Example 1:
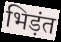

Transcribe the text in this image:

भिड़ंत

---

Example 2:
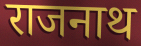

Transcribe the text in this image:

राजनाथ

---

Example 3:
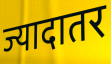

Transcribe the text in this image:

ज्यादातर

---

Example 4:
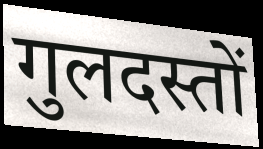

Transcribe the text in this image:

गुलदस्तों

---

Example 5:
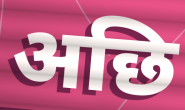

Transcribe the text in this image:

अछि